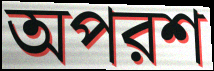
অপরশ